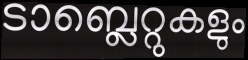
ടാബ്ലെറ്റുകളും